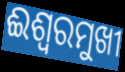
ଈଶ୍ୱରମୁଖୀ